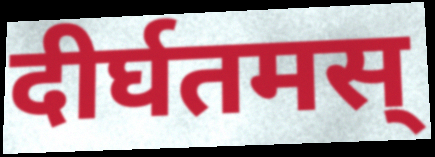
दीर्घतमस्